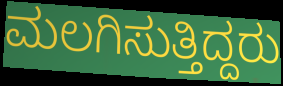
ಮಲಗಿಸುತ್ತಿದ್ದರು